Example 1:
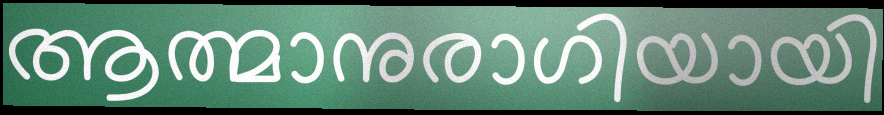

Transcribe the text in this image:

ആത്മാനുരാഗിയായി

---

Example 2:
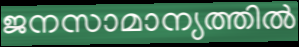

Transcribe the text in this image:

ജനസാമാന്യത്തിൽ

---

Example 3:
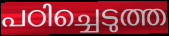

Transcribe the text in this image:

പഠിച്ചെടുത്ത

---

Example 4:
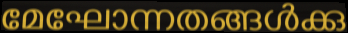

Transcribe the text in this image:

മേഘോന്നതങ്ങൾക്കു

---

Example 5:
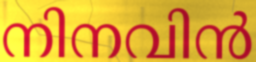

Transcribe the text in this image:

നിനവിൻ